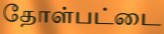
தோள்பட்டை